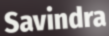
Savindra